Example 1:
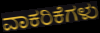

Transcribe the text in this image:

ವಾಕರಿಕೆಗಳು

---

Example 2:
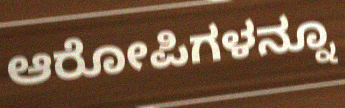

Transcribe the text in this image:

ಆರೋಪಿಗಳನ್ನೂ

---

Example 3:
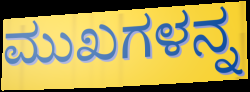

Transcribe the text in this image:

ಮುಖಗಳನ್ನ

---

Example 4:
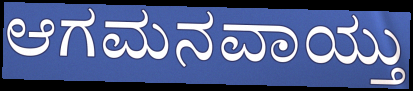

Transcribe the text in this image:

ಆಗಮನವಾಯ್ತು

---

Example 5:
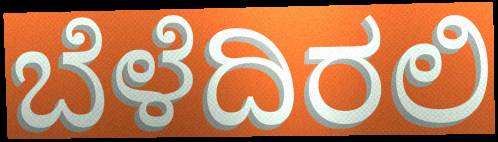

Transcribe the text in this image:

ಬೆಳೆದಿರಲಿ